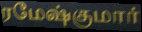
ரமேஷ்குமார்